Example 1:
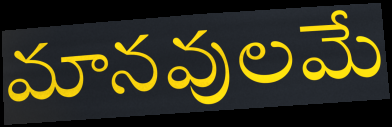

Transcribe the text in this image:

మానవులమే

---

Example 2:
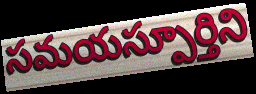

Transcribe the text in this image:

సమయస్పూర్తిని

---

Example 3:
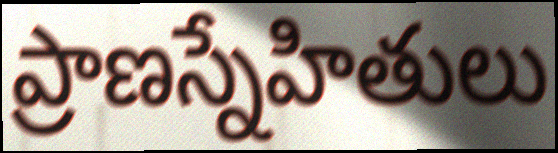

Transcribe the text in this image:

ప్రాణస్నేహితులు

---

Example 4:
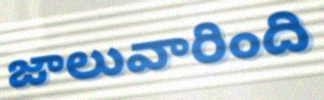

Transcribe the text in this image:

జాలువారింది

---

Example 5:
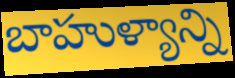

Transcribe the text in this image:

బాహుళ్యాన్ని